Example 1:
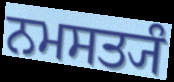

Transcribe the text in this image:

ਨਮਸਤ੍ਯੰ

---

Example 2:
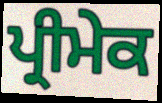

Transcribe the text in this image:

ਪ੍ਰੀਮੇਕ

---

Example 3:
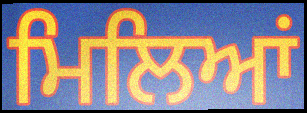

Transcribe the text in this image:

ਮਿਲਿਆਂ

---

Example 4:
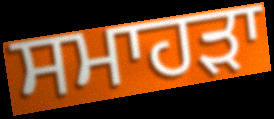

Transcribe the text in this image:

ਸਮਾਹੜਾ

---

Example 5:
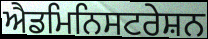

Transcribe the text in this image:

ਐਡਮਿਨਿਸਟਰੇਸ਼ਨ